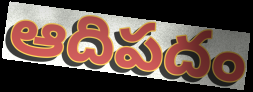
ఆదిపదం